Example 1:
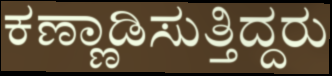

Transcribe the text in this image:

ಕಣ್ಣಾಡಿಸುತ್ತಿದ್ದರು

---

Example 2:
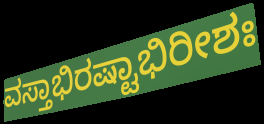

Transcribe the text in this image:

ವಸ್ತಾಭಿರಷ್ಟಾಭಿರೀಶಃ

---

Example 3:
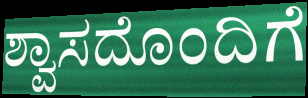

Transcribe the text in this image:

ಶ್ವಾಸದೊಂದಿಗೆ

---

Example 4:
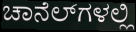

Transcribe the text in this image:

ಚಾನೆಲ್‍ಗಳಲ್ಲಿ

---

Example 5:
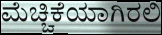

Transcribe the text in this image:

ಮೆಚ್ಚಿಕೆಯಾಗಿರಲಿ